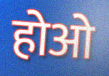
होओ